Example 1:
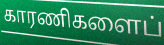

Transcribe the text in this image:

காரணிகளைப்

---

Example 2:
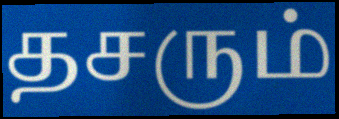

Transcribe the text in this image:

தசரும்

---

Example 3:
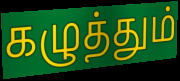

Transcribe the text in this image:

கழுத்தும்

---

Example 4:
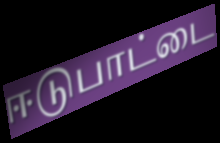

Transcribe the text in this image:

ஈடுபாட்டை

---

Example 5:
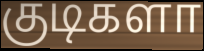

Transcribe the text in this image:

குடிகளா